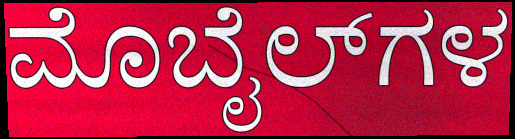
ಮೊಬೈಲ್‌ಗಳ